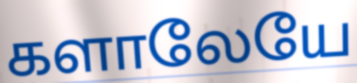
களாலேயே